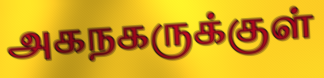
அகநகருக்குள்